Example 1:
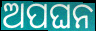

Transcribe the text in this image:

ଅପଘନ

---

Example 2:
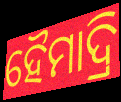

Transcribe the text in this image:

ହୈମାଦ୍ରି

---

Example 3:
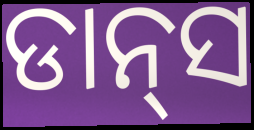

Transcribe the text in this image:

ଡାନ୍‍ସ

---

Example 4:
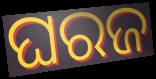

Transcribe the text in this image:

ଘରଜ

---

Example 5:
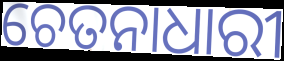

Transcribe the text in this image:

ଚେତନାଧାରୀ